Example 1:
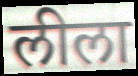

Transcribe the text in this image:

लीला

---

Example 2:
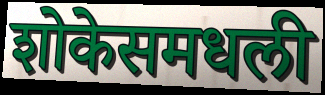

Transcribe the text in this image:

शोकेसमधली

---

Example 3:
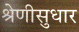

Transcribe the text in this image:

श्रेणीसुधार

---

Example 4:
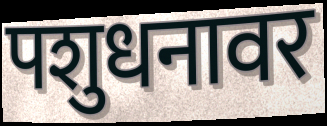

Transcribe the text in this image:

पशुधनावर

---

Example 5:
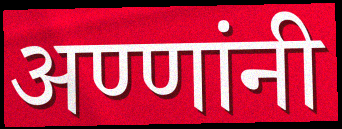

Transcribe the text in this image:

अण्णांनी